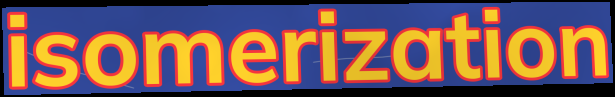
isomerization